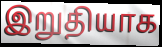
இறுதியாக